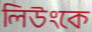
লিউংকে